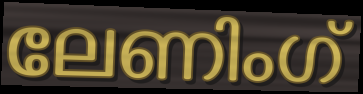
ലേണിംഗ്